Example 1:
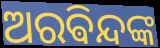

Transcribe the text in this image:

ଅରଵିନ୍ଦଙ୍କ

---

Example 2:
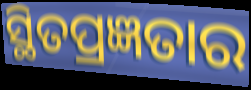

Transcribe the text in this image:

ସ୍ଥିତପ୍ରଜ୍ଞତାର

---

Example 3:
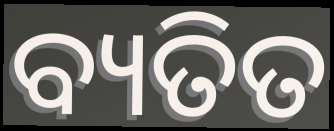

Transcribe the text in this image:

ବ୍ୟତିତ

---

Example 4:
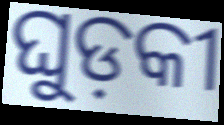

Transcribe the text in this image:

ଘୁଡ଼କୀ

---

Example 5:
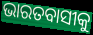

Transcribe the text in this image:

ଭାରତବାସୀକୁ